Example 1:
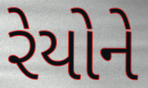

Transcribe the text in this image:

રેયોને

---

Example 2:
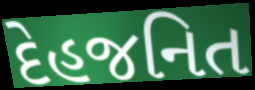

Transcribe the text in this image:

દેહજનિત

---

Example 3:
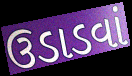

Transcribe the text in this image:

ઉડાડવાં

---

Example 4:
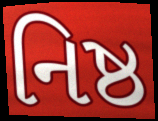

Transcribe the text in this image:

નિષ્ઠ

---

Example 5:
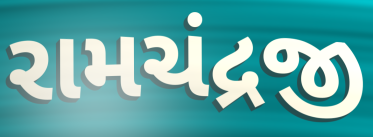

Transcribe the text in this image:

રામચંદ્રજી